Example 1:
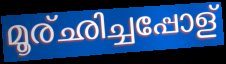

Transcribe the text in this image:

മൂര്ഛിച്ചപ്പോള്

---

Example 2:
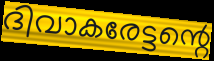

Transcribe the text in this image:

ദിവാകരേട്ടന്റെ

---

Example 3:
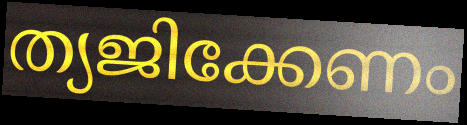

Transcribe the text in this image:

ത്യജിക്കേണം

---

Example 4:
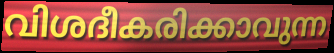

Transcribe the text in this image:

വിശദീകരിക്കാവുന്ന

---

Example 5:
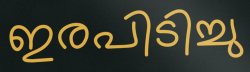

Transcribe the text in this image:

ഇരപിടിച്ചു